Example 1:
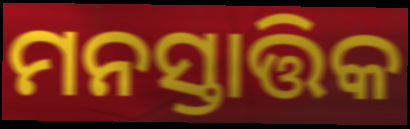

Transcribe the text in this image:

ମନସ୍ତାତ୍ତିକ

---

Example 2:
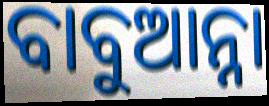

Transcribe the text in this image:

ବାବୁଆନ୍ନା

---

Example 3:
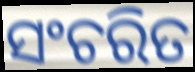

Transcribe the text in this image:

ସଂଚରିତ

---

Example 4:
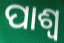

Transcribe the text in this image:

ପାଶ୍ୱ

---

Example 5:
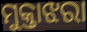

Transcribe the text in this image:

ମୁକ୍ତାଝରା